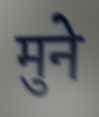
मुने